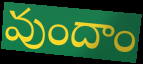
వుందాం